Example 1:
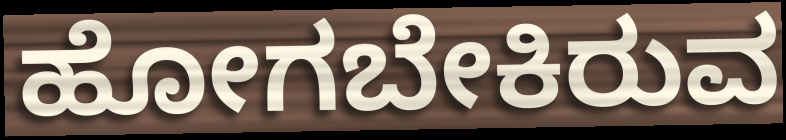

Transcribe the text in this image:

ಹೋಗಬೇಕಿರುವ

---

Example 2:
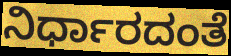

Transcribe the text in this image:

ನಿರ್ಧಾರದಂತೆ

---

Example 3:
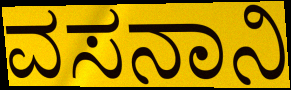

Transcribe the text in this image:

ವಸನಾನಿ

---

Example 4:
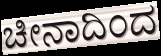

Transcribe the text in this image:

ಚೀನಾದಿಂದ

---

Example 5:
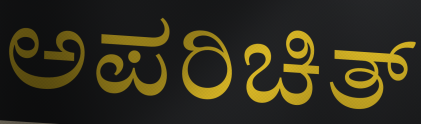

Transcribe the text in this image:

ಅಪರಿಚಿತ್